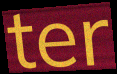
ter